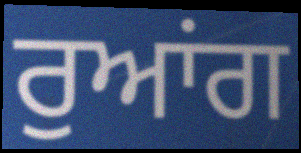
ਰੁਆਂਗ